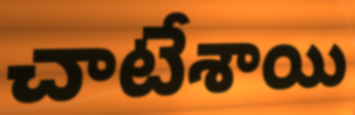
చాటేశాయి